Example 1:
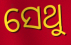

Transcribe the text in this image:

ସେଥୁ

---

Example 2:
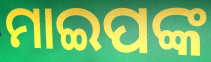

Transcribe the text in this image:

ମାଇପଙ୍କ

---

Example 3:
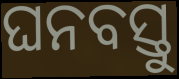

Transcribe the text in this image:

ଘନବସ୍ତୁ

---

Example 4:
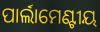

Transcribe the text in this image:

ପାର୍ଲାମେଣ୍ଟୀୟ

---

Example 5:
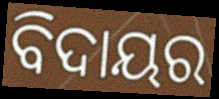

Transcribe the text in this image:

ବିଦାୟର